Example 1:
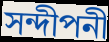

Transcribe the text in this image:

সন্দীপনী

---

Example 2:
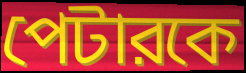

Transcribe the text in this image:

পেটারকে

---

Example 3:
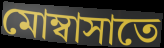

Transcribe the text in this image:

মোম্বাসাতে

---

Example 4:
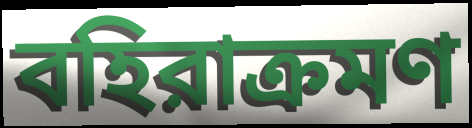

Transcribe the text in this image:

বহিরাক্রমণ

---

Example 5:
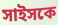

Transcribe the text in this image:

সাইসকে